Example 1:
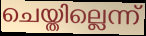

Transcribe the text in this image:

ചെയ്തില്ലെന്ന്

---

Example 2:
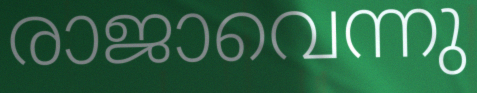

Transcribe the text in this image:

രാജാവെന്നു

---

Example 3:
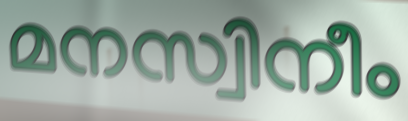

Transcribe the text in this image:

മനസ്വിനീം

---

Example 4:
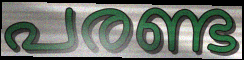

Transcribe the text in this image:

പരണ്ട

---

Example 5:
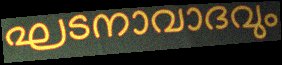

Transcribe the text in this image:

ഘടനാവാദവും